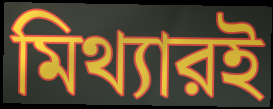
মিথ্যারই